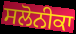
ਸਲੋਨੀਕਾ